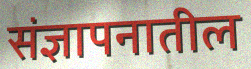
संज्ञापनातील